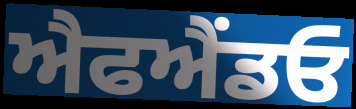
ਐਫਐਂਡਓ